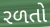
રળતો